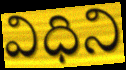
విధిని